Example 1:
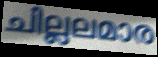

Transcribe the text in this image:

ചില്ലലമാര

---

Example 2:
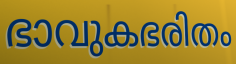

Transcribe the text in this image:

ഭാവുകഭരിതം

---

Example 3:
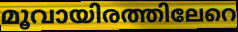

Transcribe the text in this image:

മൂവായിരത്തിലേറെ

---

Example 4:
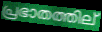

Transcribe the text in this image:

പ്രഭാതത്തില്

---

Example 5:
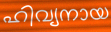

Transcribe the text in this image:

ഹിവ്യനായ